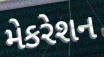
મેકરેશન